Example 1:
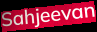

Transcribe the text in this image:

Sahjeevan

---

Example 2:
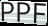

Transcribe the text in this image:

PPF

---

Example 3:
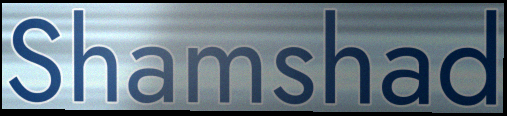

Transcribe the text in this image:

Shamshad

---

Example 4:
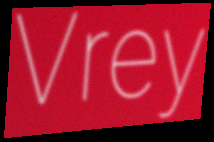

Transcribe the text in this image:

Vrey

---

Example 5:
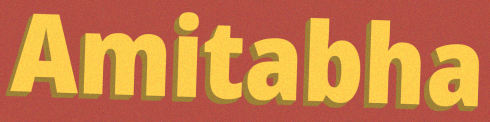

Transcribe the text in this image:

Amitabha